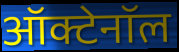
ऑक्टेनॉल